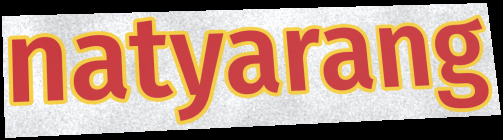
natyarang